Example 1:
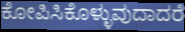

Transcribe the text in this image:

ಕೋಪಿಸಿಕೊಳ್ಳುವುದಾದರೆ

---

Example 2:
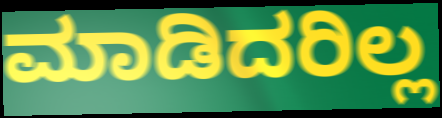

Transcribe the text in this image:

ಮಾಡಿದರಿಲ್ಲ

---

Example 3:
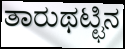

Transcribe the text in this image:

ತಾರುಥಟ್ಟಿನ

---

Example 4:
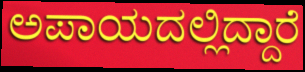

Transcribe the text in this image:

ಅಪಾಯದಲ್ಲಿದ್ದಾರೆ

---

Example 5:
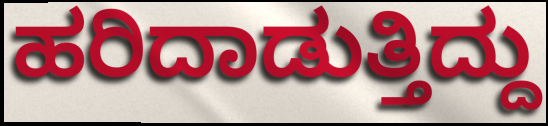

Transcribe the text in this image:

ಹರಿದಾಡುತ್ತಿದ್ದು